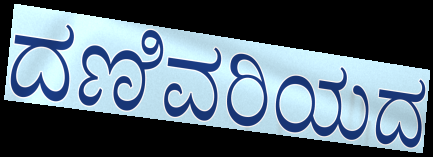
ದಣಿವರಿಯದ